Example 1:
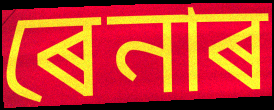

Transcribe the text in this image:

ৰেনাৰ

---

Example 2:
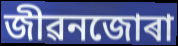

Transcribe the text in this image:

জীৱনজোৰা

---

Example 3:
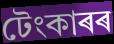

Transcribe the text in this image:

টেংকাৰৰ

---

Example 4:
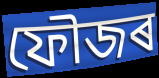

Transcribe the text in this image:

ফৌজৰ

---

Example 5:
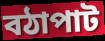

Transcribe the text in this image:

বঠাপাট